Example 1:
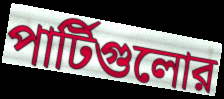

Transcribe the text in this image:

পার্টিগুলোর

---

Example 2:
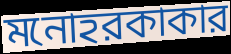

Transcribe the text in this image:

মনোহরকাকার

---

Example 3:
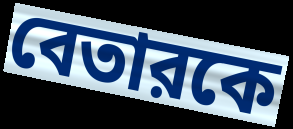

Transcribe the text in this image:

বেতারকে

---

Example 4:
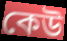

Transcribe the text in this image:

কেউ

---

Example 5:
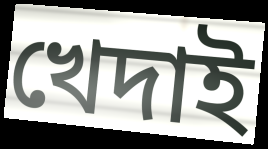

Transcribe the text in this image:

খেদাই